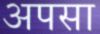
अपसा